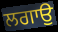
ਲਗਾਉੁ